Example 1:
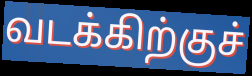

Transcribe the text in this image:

வடக்கிற்குச்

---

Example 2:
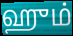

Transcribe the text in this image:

ஹும்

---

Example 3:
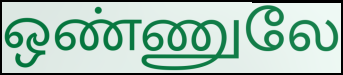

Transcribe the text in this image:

ஒண்ணுலே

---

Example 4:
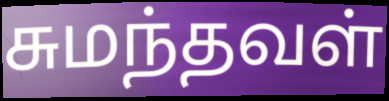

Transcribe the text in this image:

சுமந்தவள்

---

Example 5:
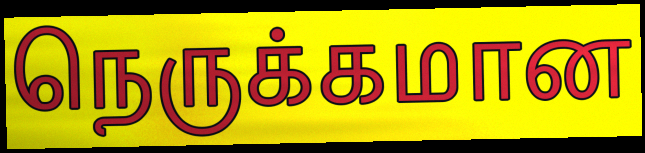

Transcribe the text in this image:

நெருக்கமான